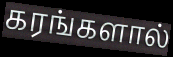
கரங்களால்